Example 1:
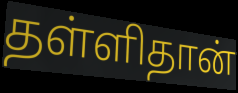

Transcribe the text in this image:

தள்ளிதான்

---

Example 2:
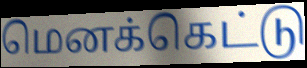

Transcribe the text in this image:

மெனக்கெட்டு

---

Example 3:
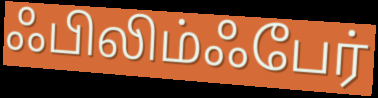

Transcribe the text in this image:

ஃபிலிம்ஃபேர்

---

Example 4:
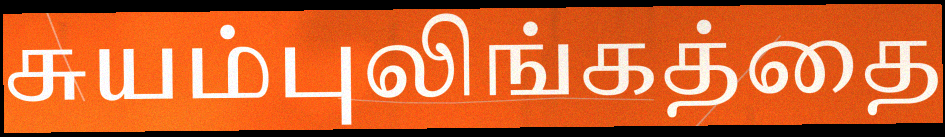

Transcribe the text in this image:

சுயம்புலிங்கத்தை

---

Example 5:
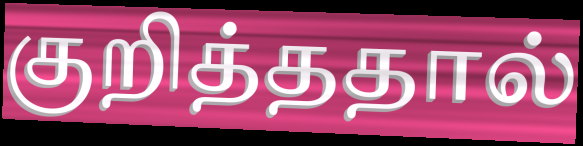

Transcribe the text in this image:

குறித்ததால்